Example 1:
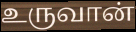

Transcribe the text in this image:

உருவான்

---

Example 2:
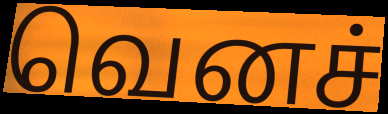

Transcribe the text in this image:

வெனச்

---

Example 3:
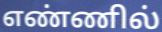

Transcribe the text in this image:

எண்ணில்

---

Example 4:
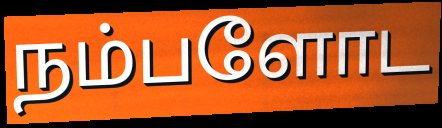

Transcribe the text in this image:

நம்பளோட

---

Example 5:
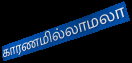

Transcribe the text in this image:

காரணமில்லாமலா